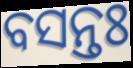
ବସନ୍ତଃ